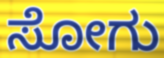
ಸೋಗು